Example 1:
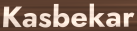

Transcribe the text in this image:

Kasbekar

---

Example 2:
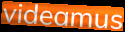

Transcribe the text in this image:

videamus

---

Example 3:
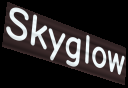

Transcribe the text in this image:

Skyglow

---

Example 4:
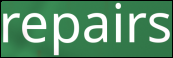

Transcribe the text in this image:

repairs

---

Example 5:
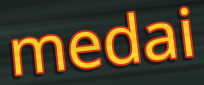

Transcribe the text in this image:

medai